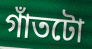
গাঁতটো